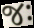
જઃ